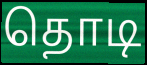
தொடி